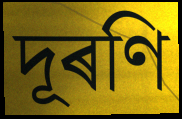
দূৰণি